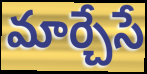
మార్చేసే